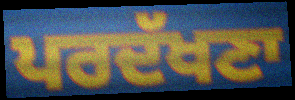
ਪਰਦੱਖਣਾ